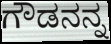
ಗೌಡನನ್ನ